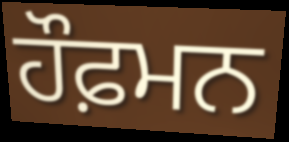
ਹੌਫ਼ਮਨ